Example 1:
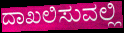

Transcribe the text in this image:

ದಾಖಲಿಸುವಲ್ಲಿ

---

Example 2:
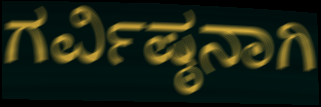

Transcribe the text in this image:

ಗರ್ವಿಷ್ಠನಾಗಿ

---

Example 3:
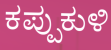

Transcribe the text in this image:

ಕಪ್ಪುಕುಳಿ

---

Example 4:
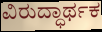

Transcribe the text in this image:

ವಿರುದ್ಧಾರ್ಥಕ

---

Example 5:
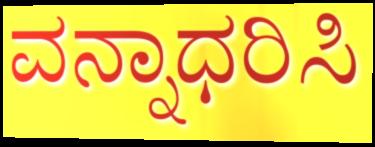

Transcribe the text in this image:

ವನ್ನಾಧರಿಸಿ